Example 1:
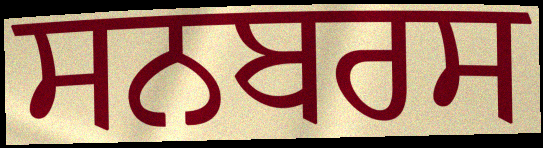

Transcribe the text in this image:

ਸਨਬਰਸ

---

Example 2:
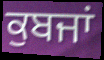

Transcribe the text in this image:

ਕੁਬਜਾਂ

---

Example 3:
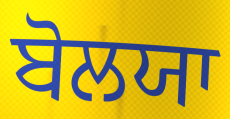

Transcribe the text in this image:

ਬੋਲਯਾ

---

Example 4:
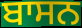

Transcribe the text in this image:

ਬਾਸਨ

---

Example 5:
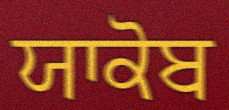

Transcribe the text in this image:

ਯਾਕੋਬ